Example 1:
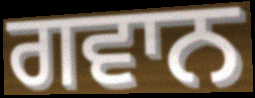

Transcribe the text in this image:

ਗਵਾਨ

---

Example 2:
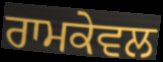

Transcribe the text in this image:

ਰਾਮਕੇਵਲ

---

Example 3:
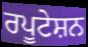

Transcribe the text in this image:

ਰਪੂਟੇਸ਼ਨ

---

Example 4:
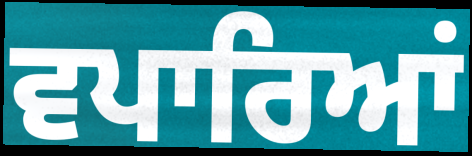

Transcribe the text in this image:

ਵਪਾਰਿਆਂ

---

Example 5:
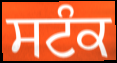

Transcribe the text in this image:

ਸਟੰਕ